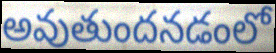
అవుతుందనడంలో